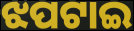
ଝପଟାଇ